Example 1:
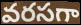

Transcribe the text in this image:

వరసగా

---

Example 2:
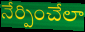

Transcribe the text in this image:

నేర్పించేలా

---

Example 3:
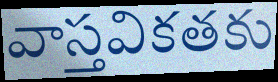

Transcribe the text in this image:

వాస్తవికతకు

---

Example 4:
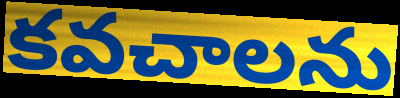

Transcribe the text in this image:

కవచాలను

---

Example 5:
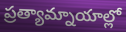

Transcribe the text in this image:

ప్రత్యామ్నాయాల్లో